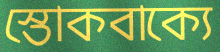
স্তোকবাক্যে